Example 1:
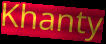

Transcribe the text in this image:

Khanty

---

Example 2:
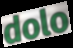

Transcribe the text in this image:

dolo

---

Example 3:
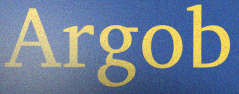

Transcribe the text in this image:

Argob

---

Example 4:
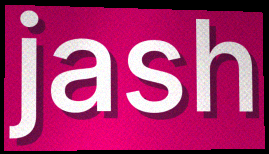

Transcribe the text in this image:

jash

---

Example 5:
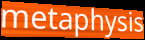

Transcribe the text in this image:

metaphysis